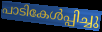
പാടികേൾപ്പിച്ചു